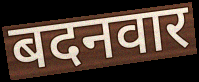
बदनवार